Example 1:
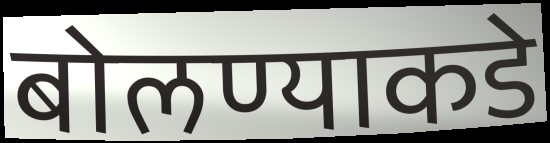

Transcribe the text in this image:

बोलण्याकडे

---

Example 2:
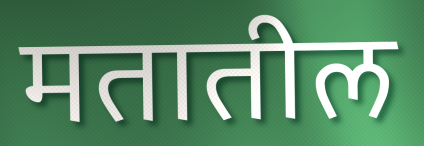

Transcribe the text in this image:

मतातील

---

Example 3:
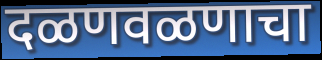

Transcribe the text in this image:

दळणवळणाचा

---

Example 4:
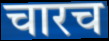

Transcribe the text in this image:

चारच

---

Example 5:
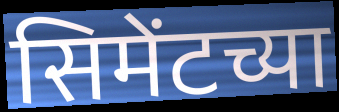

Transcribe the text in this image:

सिमेंटच्या